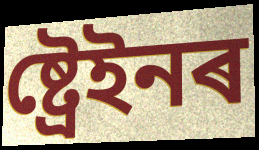
ষ্ট্ৰেইনৰ